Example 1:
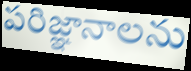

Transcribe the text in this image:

పరిజ్ఞానాలను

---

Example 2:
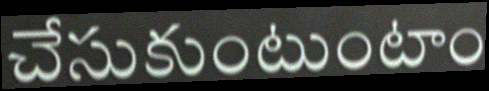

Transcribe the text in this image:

చేసుకుంటుంటాం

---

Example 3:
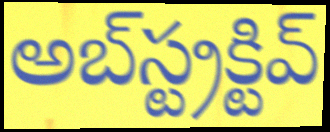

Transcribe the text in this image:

అబ్‌స్ట్రక్టివ్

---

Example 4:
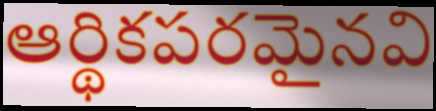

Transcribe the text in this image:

ఆర్థికపరమైనవి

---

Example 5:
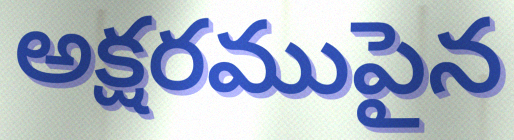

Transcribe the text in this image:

అక్షరముపైన